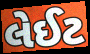
લેઈટ